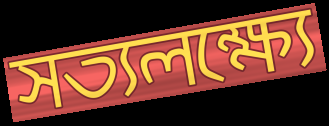
সত্যলক্ষ্যে